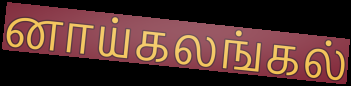
னாய்கலங்கல்